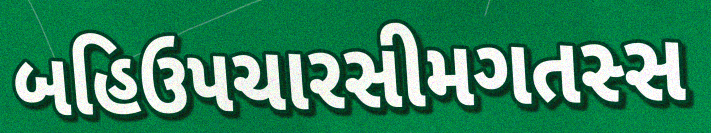
બહિઉપચારસીમગતસ્સ